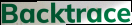
Backtrace